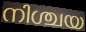
നിശ്ചയ